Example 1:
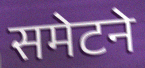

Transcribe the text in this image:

समेटने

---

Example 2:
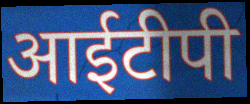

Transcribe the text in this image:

आईटीपी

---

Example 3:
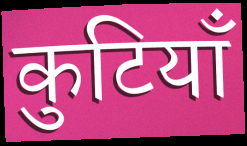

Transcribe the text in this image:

कुटियाँ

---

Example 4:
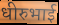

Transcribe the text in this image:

धीरुभाई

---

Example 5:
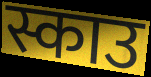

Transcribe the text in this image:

स्काउ